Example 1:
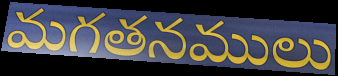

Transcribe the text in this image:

మగతనములు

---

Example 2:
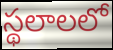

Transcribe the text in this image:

స్థలాలలో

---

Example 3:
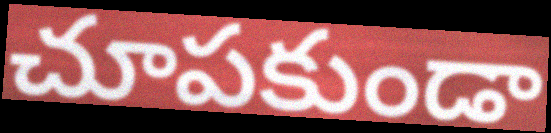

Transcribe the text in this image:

చూపకుండా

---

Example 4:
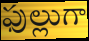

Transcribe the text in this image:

ఫుల్లుగా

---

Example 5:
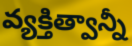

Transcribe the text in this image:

వ్యక్తిత్వాన్నీ